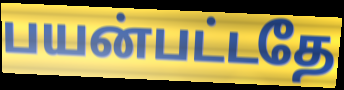
பயன்பட்டதே